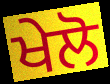
ਖੇਲੋ